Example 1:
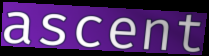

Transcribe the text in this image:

ascent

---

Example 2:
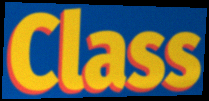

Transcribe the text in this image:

Class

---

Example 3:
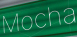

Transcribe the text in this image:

Mocha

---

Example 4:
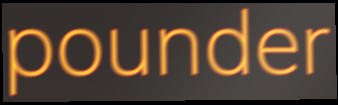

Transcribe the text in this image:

pounder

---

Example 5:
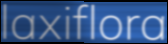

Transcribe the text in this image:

laxiflora